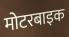
मोटरबाइक